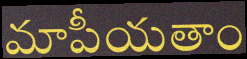
మాపీయతాం